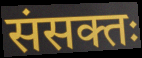
संसक्तः